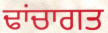
ਢਾਂਚਾਗਤ